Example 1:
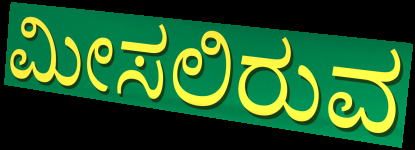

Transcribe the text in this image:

ಮೀಸಲಿರುವ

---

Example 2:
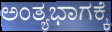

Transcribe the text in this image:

ಅಂತ್ಯಭಾಗಕ್ಕೆ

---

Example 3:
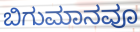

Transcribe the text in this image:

ಬಿಗುಮಾನವೂ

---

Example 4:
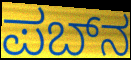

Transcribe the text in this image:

ಪಬ್‌ನ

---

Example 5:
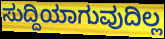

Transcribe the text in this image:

ಸುದ್ದಿಯಾಗುವುದಿಲ್ಲ